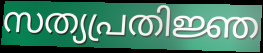
സത്യപ്രതിജ്ഞ